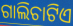
ଗାଲିଚାଟିଏ